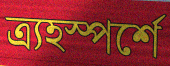
ত্র্যহস্পর্শে